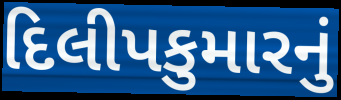
દિલીપકુમારનું